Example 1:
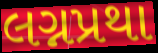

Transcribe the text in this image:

લગ્નપ્રથા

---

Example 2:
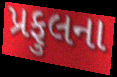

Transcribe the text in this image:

પ્રફુલના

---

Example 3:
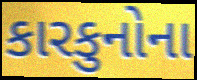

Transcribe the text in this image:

કારકુનોના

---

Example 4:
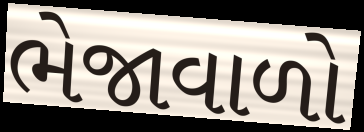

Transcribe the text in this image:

ભેજાવાળો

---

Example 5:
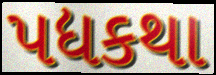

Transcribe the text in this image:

પદ્યકથા